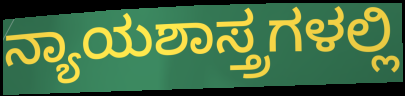
ನ್ಯಾಯಶಾಸ್ತ್ರಗಳಲ್ಲಿ